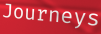
Journeys